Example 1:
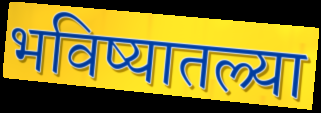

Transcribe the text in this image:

भविष्यातल्या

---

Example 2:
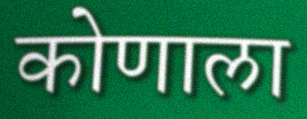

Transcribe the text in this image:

कोणाला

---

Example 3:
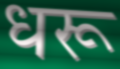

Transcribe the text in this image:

धरू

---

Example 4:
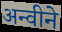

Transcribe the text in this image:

अन्वीने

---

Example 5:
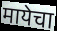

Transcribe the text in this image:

मायेचा